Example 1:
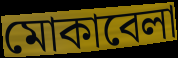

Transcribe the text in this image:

মোকাবেলা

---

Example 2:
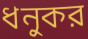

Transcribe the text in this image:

ধনুকর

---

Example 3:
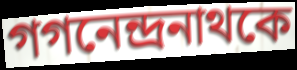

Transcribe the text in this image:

গগনেন্দ্রনাথকে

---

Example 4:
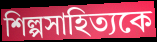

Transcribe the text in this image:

শিল্পসাহিত্যকে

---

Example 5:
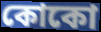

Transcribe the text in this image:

কোকো